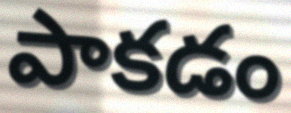
పాకడం